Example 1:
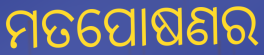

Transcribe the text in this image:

ମତପୋଷଣର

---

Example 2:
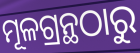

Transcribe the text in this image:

ମୂଳଗ୍ରନ୍ଥଠାରୁ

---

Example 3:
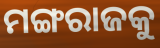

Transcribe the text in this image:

ମଙ୍ଗରାଜକୁ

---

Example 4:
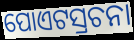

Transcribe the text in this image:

ପୋଏଟସ୍ରଚନା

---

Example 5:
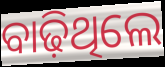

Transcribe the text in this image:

ବାଢ଼ିଥିଲେ